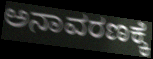
ಅನಾವರಣಕ್ಕೆ